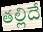
తల్లిదే